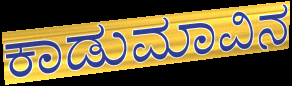
ಕಾಡುಮಾವಿನ